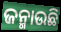
ଜନ୍ମାଉଛି